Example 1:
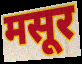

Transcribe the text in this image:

मसूर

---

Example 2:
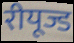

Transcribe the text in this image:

रीयूज्ड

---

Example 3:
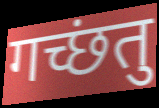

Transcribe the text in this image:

गच्छंतु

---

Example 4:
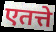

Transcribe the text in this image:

एतत्ते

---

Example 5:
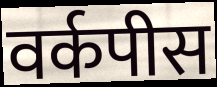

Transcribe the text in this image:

वर्कपीस